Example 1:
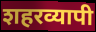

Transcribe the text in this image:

शहरव्यापी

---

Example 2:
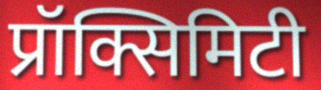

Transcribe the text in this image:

प्रॉक्सिमिटी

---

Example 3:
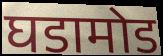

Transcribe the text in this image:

घडामोड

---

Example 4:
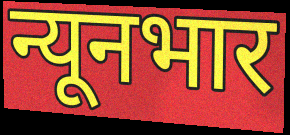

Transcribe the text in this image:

न्यूनभार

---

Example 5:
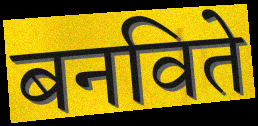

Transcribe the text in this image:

बनविते